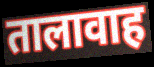
तालावाह